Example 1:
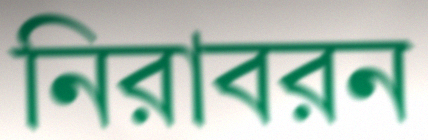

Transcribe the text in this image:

নিরাবরন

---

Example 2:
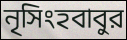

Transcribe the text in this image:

নৃসিংহবাবুর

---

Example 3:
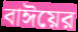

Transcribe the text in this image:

বাঈয়ের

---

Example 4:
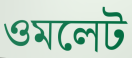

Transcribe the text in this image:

ওমলেট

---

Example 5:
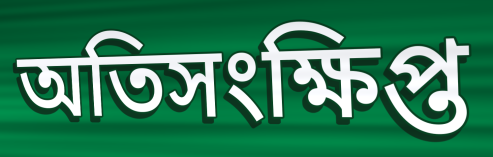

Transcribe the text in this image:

অতিসংক্ষিপ্ত